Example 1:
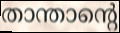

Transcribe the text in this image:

താന്താന്റെ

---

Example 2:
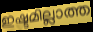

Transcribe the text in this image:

ഇഷ്ടമില്ലാത്ത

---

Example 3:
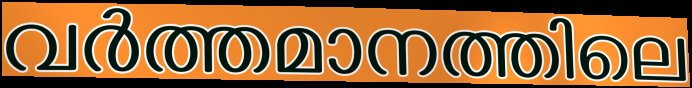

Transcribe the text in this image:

വർത്തമാനത്തിലെ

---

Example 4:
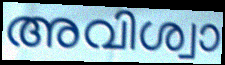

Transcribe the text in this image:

അവിശ്വാ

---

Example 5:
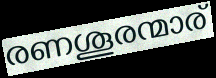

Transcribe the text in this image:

രണശൂരന്മാര്